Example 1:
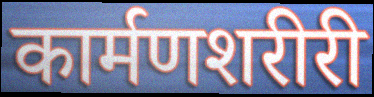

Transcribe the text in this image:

कार्मणशरीरी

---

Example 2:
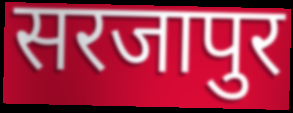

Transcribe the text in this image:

सरजापुर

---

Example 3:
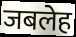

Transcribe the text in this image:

जबलेह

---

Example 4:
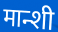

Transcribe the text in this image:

मान्शी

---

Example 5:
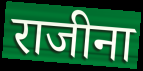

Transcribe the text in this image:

राजीना